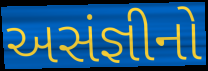
અસંજ્ઞીનો